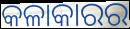
କଳାକାରର